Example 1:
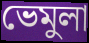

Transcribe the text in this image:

ভেমুলা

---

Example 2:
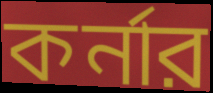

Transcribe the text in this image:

কর্নার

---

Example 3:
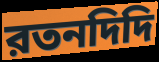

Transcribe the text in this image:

রতনদিদি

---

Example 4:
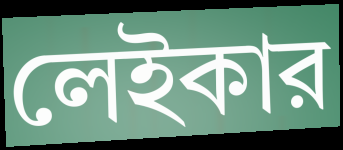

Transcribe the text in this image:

লেইকার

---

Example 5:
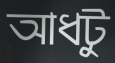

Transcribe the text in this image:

আধটু